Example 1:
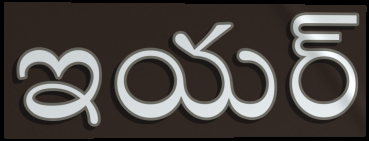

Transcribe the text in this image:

ఇయర్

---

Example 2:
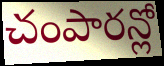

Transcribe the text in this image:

చంపారన్లో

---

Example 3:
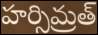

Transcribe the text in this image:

హర్సిమ్రత్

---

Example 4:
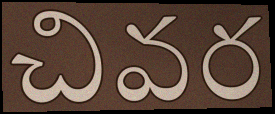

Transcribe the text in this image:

చివర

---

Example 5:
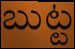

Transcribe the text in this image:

బుట్ట